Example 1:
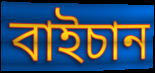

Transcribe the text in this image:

বাইচান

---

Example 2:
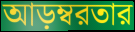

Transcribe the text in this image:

আড়ম্বরতার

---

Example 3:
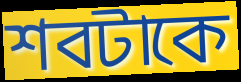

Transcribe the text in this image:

শবটাকে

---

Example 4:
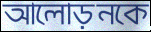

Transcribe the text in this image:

আলোড়নকে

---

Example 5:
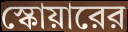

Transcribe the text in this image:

স্কোয়ারের